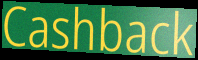
Cashback